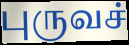
புருவச்